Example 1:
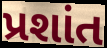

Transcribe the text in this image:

પ્રશાંત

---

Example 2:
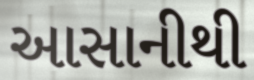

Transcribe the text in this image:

આસાનીથી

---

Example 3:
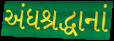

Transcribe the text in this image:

અંધશ્રદ્ધાનાં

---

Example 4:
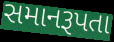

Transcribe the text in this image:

સમાનરૂપતા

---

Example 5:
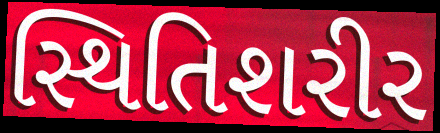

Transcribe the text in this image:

સ્થિતિશરીર